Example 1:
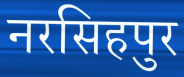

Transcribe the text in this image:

नरसिहपुर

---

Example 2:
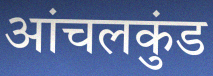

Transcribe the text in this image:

आंचलकुंड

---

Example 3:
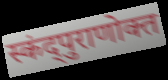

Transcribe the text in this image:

स्कंद्पुराणोक्त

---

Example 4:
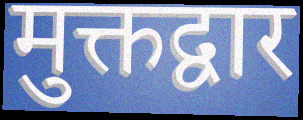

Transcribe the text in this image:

मुक्तद्वार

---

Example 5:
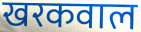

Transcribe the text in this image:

खरकवाल